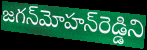
జగన్‌మోహన్‌రెడ్డిని